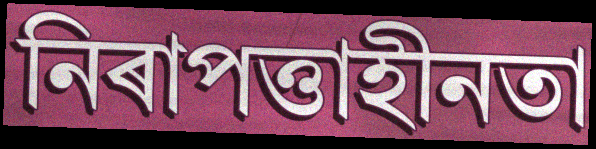
নিৰাপত্তাহীনতা